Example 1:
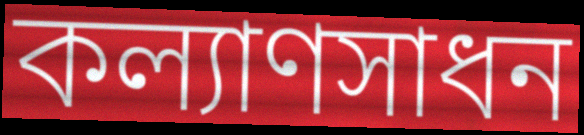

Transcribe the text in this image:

কল্যাণসাধন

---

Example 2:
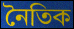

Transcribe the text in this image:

নৈতিক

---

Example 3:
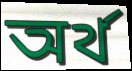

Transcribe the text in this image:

অৰ্থ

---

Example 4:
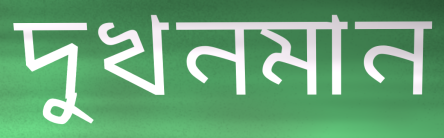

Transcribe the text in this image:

দুখনমান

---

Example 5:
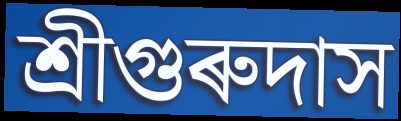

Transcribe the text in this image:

শ্ৰীগুৰুদাস